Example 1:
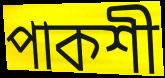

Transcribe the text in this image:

পাকশী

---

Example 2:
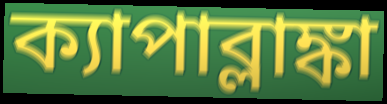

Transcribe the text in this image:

ক্যাপাব্লাঙ্কা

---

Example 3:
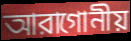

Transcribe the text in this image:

আরাগোনীয়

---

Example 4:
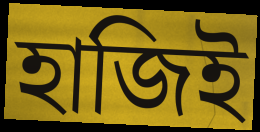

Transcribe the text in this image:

হাজিই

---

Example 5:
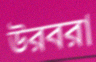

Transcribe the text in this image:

উরবরা